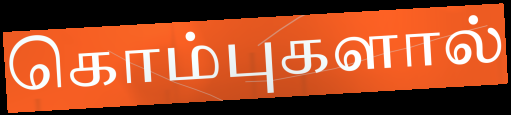
கொம்புகளால்